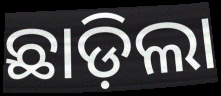
ଛାଡ଼ିଲା